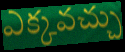
ఎక్కవచ్చు